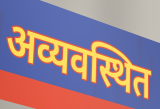
अव्यवस्थित